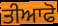
ਤੀਆਫੋ